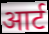
आर्ट